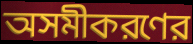
অসমীকরণের